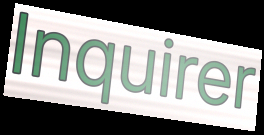
Inquirer